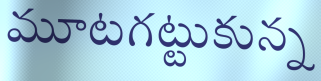
మూటగట్టుకున్న